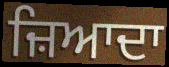
ਜ਼ਿਆਦਾ